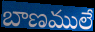
బాణములే